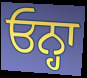
ਓਨ੍ਹਾ